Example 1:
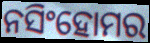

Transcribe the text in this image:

ନସିଂହୋମର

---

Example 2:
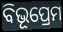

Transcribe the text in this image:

ବିଭୂପ୍ରେମ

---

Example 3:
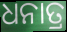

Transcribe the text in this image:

ଧନାତ୍ର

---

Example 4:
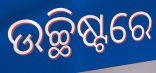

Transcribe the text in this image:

ଉଚ୍ଛିଷ୍ଟରେ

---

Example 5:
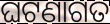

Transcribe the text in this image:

ଘଟଣାଗତ